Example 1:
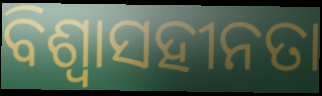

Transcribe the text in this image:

ବିଶ୍ୱାସହୀନତା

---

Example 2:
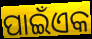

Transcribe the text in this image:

ପାଇଁଏକ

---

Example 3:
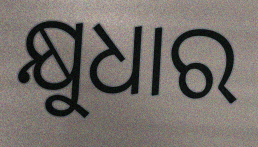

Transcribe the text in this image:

କ୍ଷୁଧାର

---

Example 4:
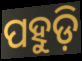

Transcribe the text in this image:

ପହୁଡ଼ି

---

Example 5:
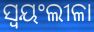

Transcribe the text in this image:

ସ୍ବୟଂଲୀଳା